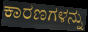
ಕಾರಣಗಳನ್ನು